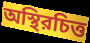
অস্থিরচিত্ত